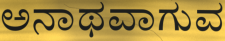
ಅನಾಥವಾಗುವ